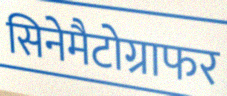
सिनेमैटोग्राफर